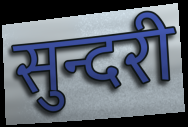
सुन्दरी